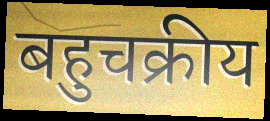
बहुचक्रीय